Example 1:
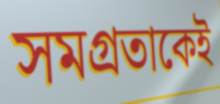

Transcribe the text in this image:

সমগ্রতাকেই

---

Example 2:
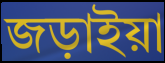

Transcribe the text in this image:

জড়াইয়া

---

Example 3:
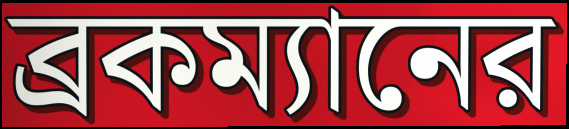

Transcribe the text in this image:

ব্রকম্যানের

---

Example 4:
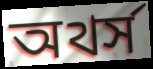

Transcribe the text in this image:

অথর্স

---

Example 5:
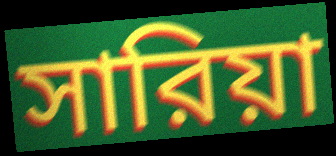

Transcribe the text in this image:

সারিয়া